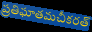
ప్రతిఘాతమచీకరత్